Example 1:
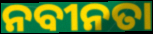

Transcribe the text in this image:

ନବୀନତା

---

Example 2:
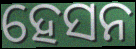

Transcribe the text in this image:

ହେସନ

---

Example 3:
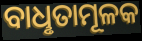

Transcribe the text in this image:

ବାଧୢତାମୂଳକ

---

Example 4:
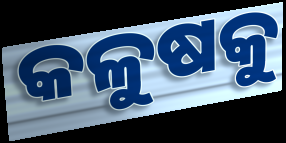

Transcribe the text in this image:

କଳୁଷକୁ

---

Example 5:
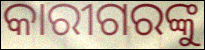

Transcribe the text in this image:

କାରୀଗରଙ୍କୁ